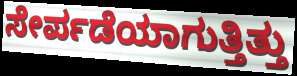
ಸೇರ್ಪಡೆಯಾಗುತ್ತಿತ್ತು